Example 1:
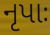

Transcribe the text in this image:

નૃપાઃ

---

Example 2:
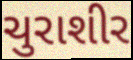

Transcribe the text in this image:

ચુરાશીર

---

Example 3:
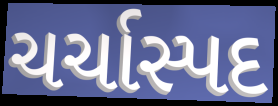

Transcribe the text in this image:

ચર્ચાસ્પદ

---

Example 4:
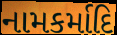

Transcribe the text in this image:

નામકર્માદિ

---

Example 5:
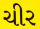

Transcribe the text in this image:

ચીર